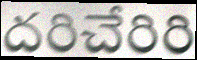
దరిచేరిరి